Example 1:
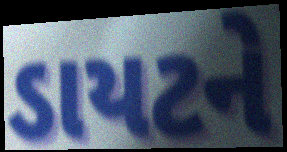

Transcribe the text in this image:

ડાયટને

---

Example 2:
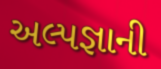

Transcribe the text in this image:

અલ્પજ્ઞાની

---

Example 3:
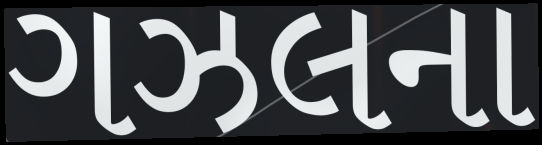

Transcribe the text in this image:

ગઝલના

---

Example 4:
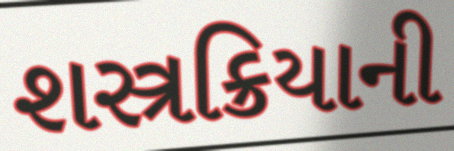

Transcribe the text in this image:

શસ્ત્રક્રિયાની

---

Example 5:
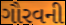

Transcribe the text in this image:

ગૌરવની